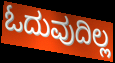
ಓದುವುದಿಲ್ಲ